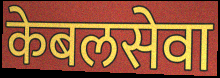
केबलसेवा